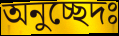
অনুচ্ছেদঃ